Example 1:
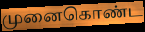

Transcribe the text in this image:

முனைகொண்ட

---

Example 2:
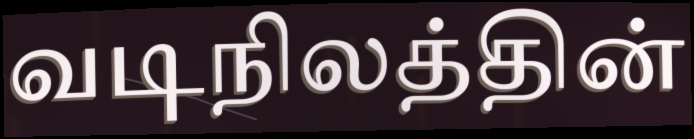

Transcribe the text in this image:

வடிநிலத்தின்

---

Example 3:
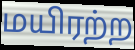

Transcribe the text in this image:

மயிரற்ற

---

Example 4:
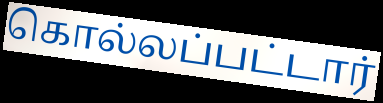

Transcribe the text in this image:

கொல்லப்பட்டார்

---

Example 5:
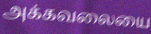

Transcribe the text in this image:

அக்கவலையை